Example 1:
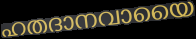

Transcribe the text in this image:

ഹതദാനവായൈ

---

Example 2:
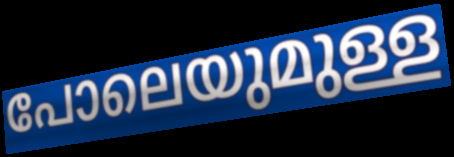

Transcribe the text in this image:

പോലെയുമുള്ള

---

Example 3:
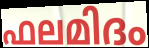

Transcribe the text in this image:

ഫലമിദം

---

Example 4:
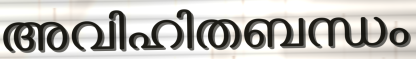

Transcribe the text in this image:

അവിഹിതബന്ധം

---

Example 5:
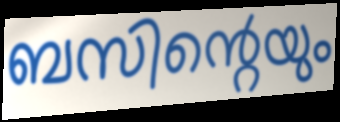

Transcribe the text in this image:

ബസിന്റെയും